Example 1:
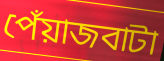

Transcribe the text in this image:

পেঁয়াজবাটা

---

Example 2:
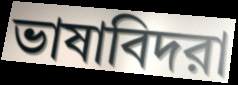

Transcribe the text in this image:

ভাষাবিদরা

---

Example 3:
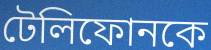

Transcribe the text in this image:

টেলিফোনকে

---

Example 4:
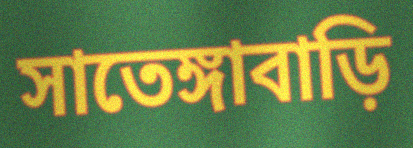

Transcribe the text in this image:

সাতেঙ্গাবাড়ি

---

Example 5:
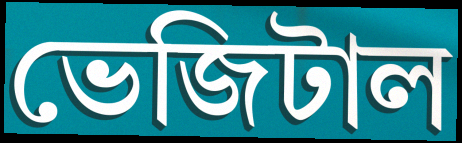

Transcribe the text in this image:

ভেজিটাল